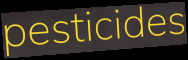
pesticides